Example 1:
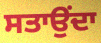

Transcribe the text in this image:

ਸਤਾਉਂਦਾ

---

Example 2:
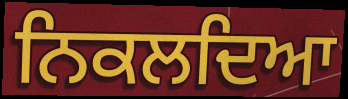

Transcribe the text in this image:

ਨਿਕਲਦਿਆ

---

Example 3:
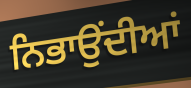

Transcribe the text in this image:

ਨਿਭਾਉਂਦੀਆਂ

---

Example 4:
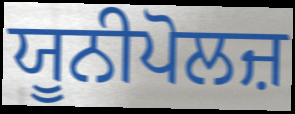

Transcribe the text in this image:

ਯੂਨੀਪੋਲਜ਼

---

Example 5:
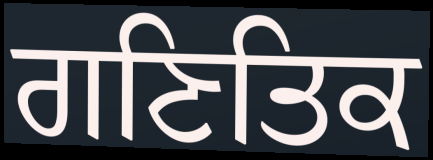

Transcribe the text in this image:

ਗਣਿਤਿਕ